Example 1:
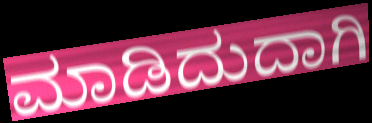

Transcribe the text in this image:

ಮಾಡಿದುದಾಗಿ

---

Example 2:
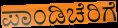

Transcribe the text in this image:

ಪಾಂಡಿಚೆರಿಗೆ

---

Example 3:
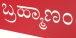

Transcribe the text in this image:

ಬ್ರಹ್ಮಾಣಂ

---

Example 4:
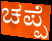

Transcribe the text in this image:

ಚಪ್ಪೆ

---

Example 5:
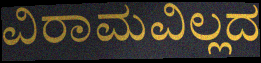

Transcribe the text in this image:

ವಿರಾಮವಿಲ್ಲದ